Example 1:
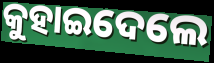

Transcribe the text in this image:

କୁହାଇଦେଲେ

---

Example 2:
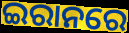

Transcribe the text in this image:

ଇରାନରେ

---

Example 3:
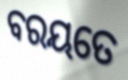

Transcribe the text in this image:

ବରୟତେ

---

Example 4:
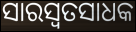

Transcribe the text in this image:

ସାରସ୍ଵତସାଧକ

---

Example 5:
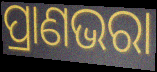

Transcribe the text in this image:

ପ୍ରାଣଭରା